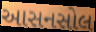
આસનસોલ